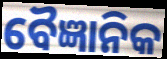
ବୈଜ୍ଞାନିକ